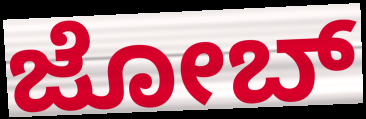
ಜೋಬ್